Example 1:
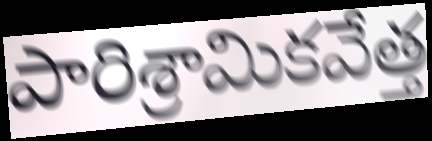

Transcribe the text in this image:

పారిశ్రామికవేత్త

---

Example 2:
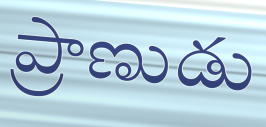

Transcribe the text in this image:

ప్రాణుడు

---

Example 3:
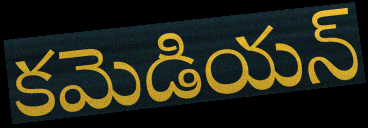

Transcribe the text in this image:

కమెడియన్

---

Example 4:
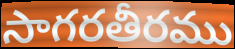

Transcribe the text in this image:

సాగరతీరము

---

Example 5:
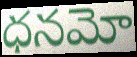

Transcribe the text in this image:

ధనమో